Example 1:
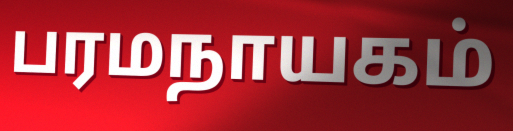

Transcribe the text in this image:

பரமநாயகம்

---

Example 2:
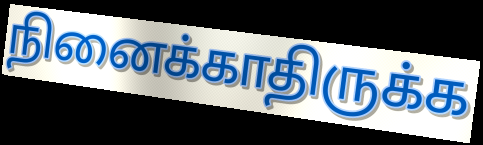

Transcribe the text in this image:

நினைக்காதிருக்க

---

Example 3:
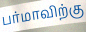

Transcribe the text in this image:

பர்மாவிற்கு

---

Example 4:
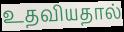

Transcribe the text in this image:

உதவியதால்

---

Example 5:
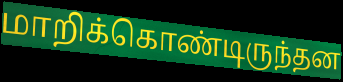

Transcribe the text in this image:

மாறிக்கொண்டிருந்தன